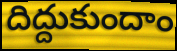
దిద్దుకుందాం